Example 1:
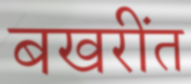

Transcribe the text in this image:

बखरींत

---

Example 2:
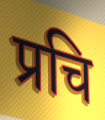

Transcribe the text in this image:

प्रचि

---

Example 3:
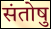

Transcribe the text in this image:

संतोषु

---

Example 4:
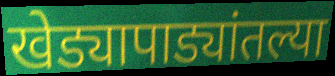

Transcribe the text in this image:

खेड्यापाड्यांतल्या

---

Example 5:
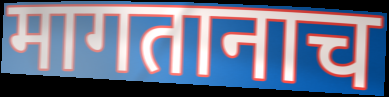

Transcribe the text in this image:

मागतानाच